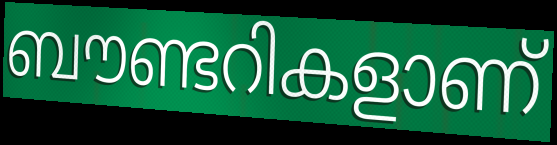
ബൗണ്ടറികളാണ്